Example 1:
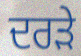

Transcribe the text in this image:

ਦਰੜੇ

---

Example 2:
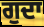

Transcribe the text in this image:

ਗੁਦਾ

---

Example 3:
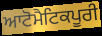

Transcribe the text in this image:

ਆਟੋਮੈਟਿਕਪੂਰੀ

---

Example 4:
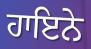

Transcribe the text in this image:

ਹਾਇਨੇ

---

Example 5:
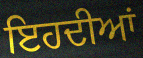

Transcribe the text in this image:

ਇਹਦੀਆਂ